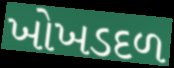
ખોખડદળ